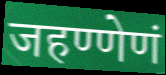
जहण्णेणं